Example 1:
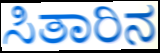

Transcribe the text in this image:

ಸಿತಾರಿನ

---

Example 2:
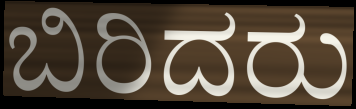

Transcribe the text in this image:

ಬಿರಿದರು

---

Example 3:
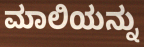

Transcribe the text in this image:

ಮಾಲಿಯನ್ನು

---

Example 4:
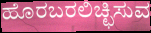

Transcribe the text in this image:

ಹೊರಬರಲಿಚ್ಛಿಸುವ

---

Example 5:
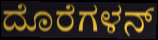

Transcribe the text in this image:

ದೊರೆಗಳನ್